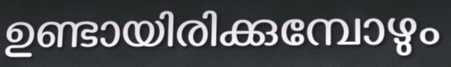
ഉണ്ടായിരിക്കുമ്പോഴും